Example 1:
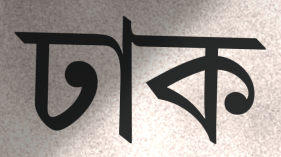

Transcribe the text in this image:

ঢাক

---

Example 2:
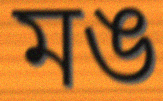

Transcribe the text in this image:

মঙ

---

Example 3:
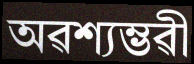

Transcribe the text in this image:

অৱশ্যম্ভৱী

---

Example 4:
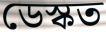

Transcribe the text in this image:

ডেস্কত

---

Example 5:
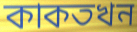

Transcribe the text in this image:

কাকতখন